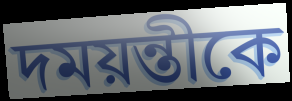
দময়ন্তীকে